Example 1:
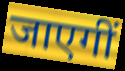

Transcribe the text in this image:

जाएगीं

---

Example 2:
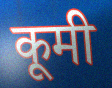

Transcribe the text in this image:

कूमी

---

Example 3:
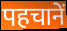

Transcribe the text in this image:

पहचानें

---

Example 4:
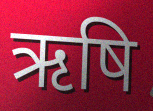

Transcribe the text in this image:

ऋषि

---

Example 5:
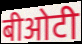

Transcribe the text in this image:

बीओटी